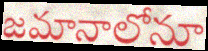
జమానాలోనూ